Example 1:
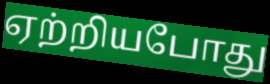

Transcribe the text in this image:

ஏற்றியபோது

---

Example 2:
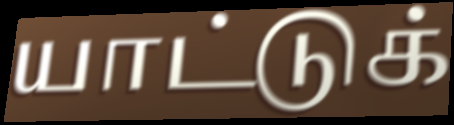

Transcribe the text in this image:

யாட்டுக்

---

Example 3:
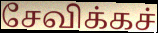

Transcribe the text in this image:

சேவிக்கச்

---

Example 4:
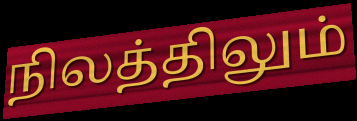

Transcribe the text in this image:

நிலத்திலும்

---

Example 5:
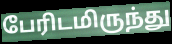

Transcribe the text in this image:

பேரிடமிருந்து